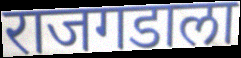
राजगडाला